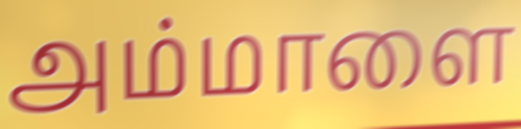
அம்மாளை